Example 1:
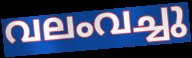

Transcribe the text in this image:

വലംവച്ചു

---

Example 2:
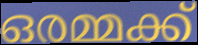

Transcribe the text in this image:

ഒരമ്മക്ക്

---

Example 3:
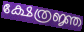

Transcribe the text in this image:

ക്ഷേത്രജ്ഞ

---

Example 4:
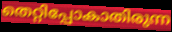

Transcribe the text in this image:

തെറ്റിപ്പോകാതിരുന്ന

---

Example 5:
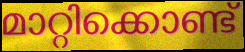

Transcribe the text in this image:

മാറ്റിക്കൊണ്ട്